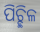
ପିଚ୍ଛିଳ